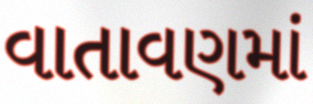
વાતાવણમાં